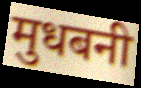
मुधबनी